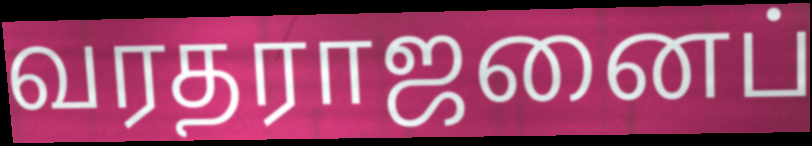
வரதராஜனைப்